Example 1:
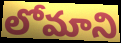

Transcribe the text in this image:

లోమాని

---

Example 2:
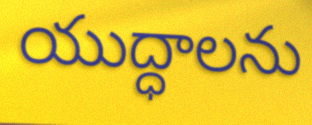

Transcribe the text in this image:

యుద్ధాలను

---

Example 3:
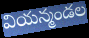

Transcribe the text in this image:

వియన్మండల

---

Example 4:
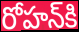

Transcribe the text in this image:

రోహన్‌కి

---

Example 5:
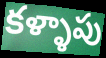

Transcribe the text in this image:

కళ్ళాపు